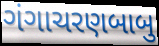
ગંગાચરણબાબુ